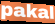
pakal